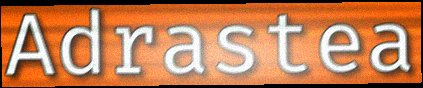
Adrastea